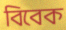
বিবেক